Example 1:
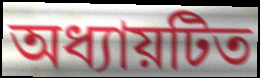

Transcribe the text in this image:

অধ্যায়টিত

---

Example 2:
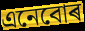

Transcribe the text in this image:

এনেবোৰ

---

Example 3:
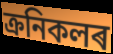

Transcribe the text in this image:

ক্ৰনিকলৰ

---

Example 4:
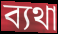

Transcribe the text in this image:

ব্যথা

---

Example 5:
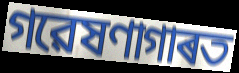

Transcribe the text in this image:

গৱেষণাগাৰত